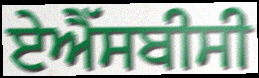
ਏਐੱਸਬੀਸੀ